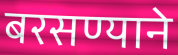
बरसण्याने